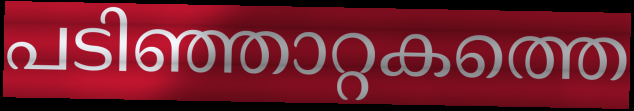
പടിഞ്ഞാറ്റകത്തെ